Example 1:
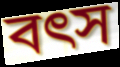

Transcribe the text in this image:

বৎস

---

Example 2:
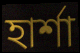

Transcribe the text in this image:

হার্শা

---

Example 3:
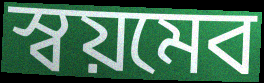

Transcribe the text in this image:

স্বয়মেব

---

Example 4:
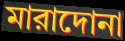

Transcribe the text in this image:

মারাদোনা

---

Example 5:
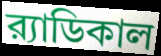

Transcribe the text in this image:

র‍্যাডিকাল